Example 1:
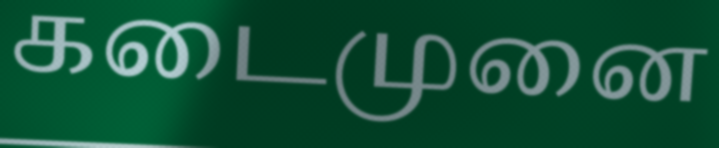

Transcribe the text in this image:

கடைமுனை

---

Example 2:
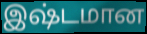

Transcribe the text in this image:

இஷ்டமான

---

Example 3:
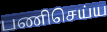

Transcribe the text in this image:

பணிசெய்ய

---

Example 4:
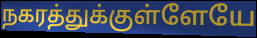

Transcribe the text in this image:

நகரத்துக்குள்ளேயே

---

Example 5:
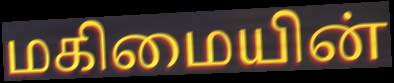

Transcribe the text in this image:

மகிமையின்